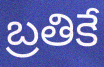
బ్రతికే